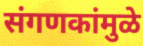
संगणकांमुळे